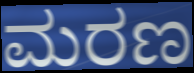
ಮರಣ